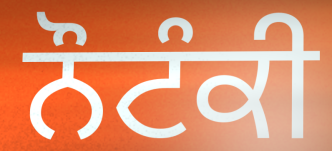
ਨੌਟੰਕੀ